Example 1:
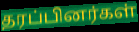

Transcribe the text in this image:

தரப்பினர்கள்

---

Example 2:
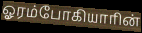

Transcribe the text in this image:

ஓரம்போகியாரின்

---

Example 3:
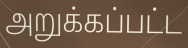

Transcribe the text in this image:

அறுக்கப்பட்ட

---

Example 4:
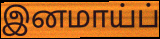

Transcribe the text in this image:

இனமாய்ப்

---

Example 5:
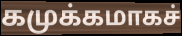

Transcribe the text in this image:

கமுக்கமாகச்